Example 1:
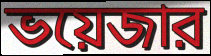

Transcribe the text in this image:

ভয়েজার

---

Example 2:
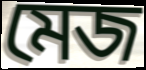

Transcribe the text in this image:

মেজ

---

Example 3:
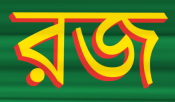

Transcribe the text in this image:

রজ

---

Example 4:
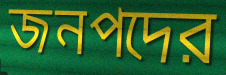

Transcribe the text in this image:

জনপদের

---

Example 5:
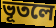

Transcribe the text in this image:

ভূতলে